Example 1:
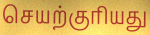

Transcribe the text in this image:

செயற்குரியது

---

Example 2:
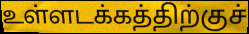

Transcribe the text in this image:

உள்ளடக்கத்திற்குச்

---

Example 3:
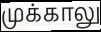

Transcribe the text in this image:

முக்காலு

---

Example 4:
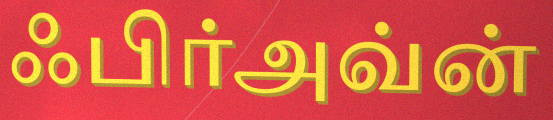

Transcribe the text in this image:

ஃபிர்அவ்ன்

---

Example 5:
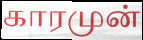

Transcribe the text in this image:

காரமுன்